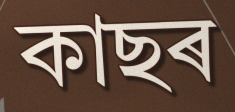
কাছৰ